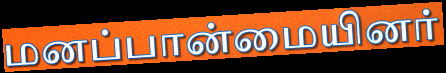
மனப்பான்மையினர்